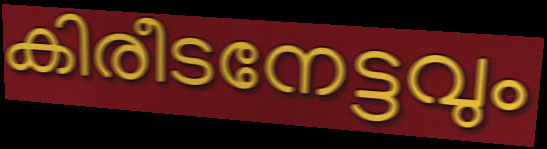
കിരീടനേട്ടവും